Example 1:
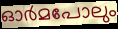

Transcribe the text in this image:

ഓർമപോലും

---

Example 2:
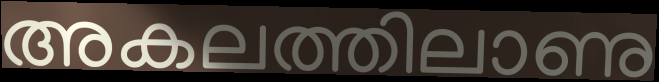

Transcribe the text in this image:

അകലത്തിലാണു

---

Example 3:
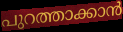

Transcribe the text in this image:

പുറത്താക്കാൻ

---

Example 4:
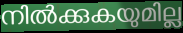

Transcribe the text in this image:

നിൽക്കുകയുമില്ല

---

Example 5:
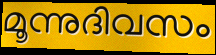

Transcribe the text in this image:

മൂന്നുദിവസം